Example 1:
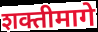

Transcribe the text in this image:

शक्तीमागे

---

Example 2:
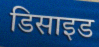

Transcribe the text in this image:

डिसाइड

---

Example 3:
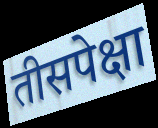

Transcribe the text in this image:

तीसपेक्षा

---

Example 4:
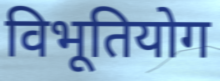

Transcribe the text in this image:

विभूतियोग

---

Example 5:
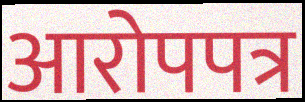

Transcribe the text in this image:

आरोपपत्र